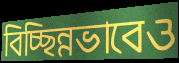
বিচ্ছিন্নভাবেও